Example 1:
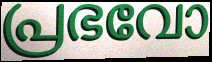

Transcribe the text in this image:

പ്രഭവോ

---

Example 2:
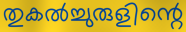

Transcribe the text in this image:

തുകൽച്ചുരുളിന്റെ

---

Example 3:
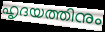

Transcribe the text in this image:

ഹൃദയത്തിനും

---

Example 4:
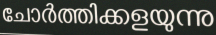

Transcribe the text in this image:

ചോർത്തിക്കളയുന്നു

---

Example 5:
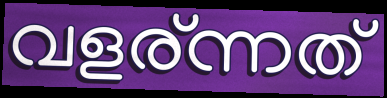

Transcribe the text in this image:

വളര്ന്നത്